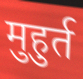
मुहुर्त